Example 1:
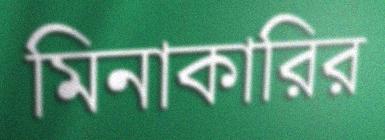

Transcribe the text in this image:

মিনাকারির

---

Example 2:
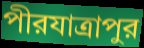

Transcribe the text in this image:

পীরযাত্রাপুর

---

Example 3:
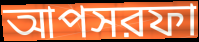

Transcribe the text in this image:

আপসরফা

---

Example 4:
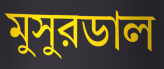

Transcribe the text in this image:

মুসুরডাল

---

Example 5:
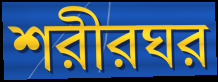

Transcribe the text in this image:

শরীরঘর